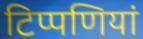
टिप्‍पणियां